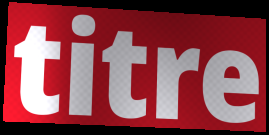
titre